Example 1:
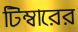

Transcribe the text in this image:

টিম্বারের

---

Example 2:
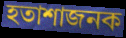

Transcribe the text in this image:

হতাশাজনক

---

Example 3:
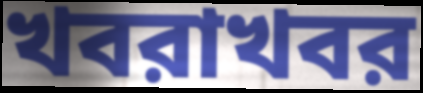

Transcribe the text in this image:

খবরাখবর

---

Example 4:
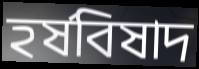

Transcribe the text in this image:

হর্ষবিষাদ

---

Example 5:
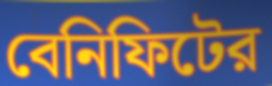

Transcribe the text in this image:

বেনিফিটের